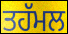
ਤਹੱਮਲ